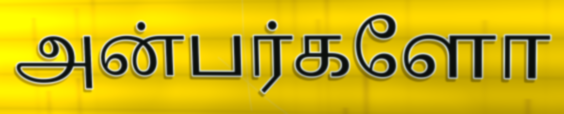
அன்பர்களோ